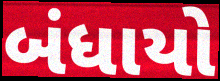
બંધાયો